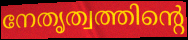
നേതൃത്വത്തിന്റെ